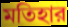
মতিহার